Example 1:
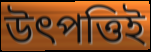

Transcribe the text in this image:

উৎপত্তিই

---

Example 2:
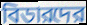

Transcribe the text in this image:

বিডারদের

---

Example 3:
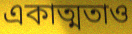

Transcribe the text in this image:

একাত্মতাও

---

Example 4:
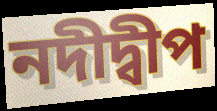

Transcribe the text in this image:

নদীদ্বীপ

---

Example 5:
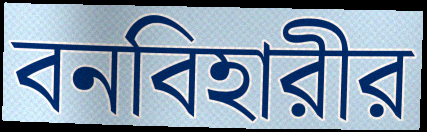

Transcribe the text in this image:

বনবিহারীর